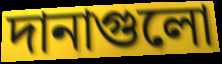
দানাগুলো